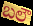
బలౌ